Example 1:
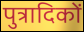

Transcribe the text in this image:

पुत्रादिकों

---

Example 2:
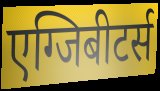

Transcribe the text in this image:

एग्जिबीटर्स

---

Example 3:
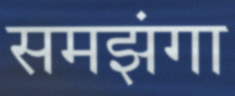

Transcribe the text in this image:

समझंगा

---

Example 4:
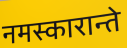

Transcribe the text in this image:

नमस्कारान्ते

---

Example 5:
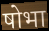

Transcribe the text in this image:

षोभा